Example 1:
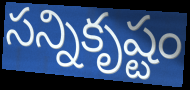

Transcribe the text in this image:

సన్నికృష్టం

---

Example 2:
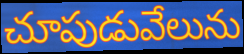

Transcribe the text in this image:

చూపుడువేలును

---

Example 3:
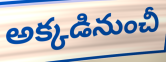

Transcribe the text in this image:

అక్కడినుంచీ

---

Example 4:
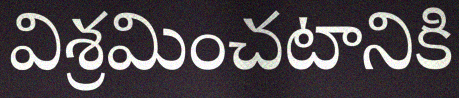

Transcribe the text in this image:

విశ్రమించటానికి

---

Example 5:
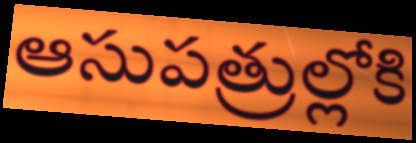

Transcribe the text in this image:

ఆసుపత్రుల్లోకి